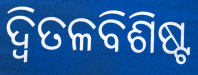
ଦ୍ୱିତଳବିଶିଷ୍ଟ